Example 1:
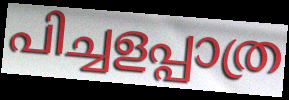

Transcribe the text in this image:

പിച്ചളപ്പാത്ര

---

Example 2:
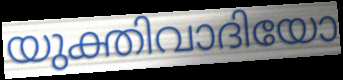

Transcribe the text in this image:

യുക്തിവാദിയോ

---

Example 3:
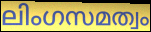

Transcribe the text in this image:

ലിംഗസമത്വം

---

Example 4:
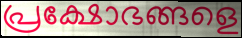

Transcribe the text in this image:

പ്രക്ഷോഭങ്ങളെ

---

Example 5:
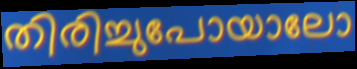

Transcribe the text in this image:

തിരിച്ചുപോയാലോ